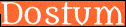
Dostum